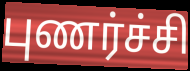
புணர்ச்சி